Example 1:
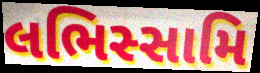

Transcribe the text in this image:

લભિસ્સામિ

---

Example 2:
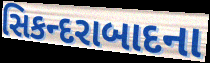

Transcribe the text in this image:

સિકન્દરાબાદના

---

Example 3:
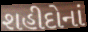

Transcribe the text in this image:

શહીદોનાં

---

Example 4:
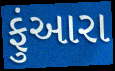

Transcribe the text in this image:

ફુંઆરા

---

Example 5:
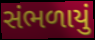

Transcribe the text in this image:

સંભળાયું